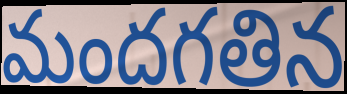
మందగతిన